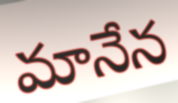
మానేన